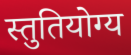
स्तुतियोग्य